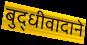
बुद्धीवादाने